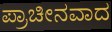
ಪ್ರಾಚೀನವಾದ